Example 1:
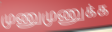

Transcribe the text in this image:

முணுமுணுக்க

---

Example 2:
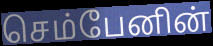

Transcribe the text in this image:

செம்பேனின்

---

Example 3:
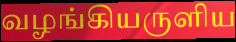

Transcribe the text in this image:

வழங்கியருளிய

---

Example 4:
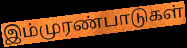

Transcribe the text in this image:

இம்முரண்பாடுகள்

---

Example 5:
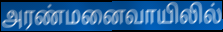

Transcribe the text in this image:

அரண்மனைவாயிலில்